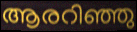
ആരറിഞ്ഞു